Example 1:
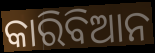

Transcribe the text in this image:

କାରିବିଆନ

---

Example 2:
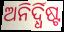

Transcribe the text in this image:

ଅନିର୍ଦ୍ଧିଷ୍ଟ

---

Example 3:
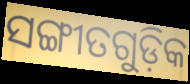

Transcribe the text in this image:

ସଙ୍ଗୀତଗୁଡ଼ିକ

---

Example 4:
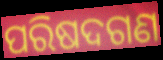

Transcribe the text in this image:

ପରିଷଦଗଣ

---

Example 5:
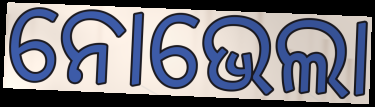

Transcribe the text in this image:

ନୋଭେଲା